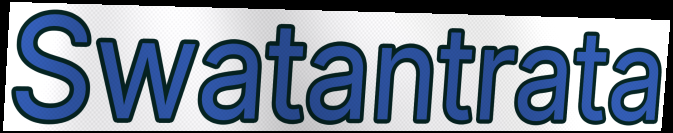
Swatantrata